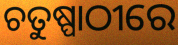
ଚତୁଷ୍ପାଠୀରେ